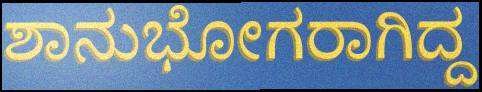
ಶಾನುಭೋಗರಾಗಿದ್ದ